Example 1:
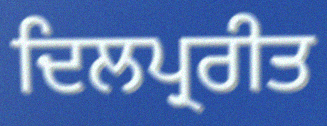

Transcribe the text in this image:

ਦਿਲਪ੍ਰਰੀਤ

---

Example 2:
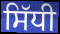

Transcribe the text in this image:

ਸਿੱਧੀ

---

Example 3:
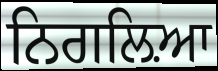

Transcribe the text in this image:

ਨਿਗਲ਼ਿਆ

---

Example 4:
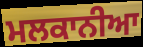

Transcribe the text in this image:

ਮਲਕਾਨੀਆ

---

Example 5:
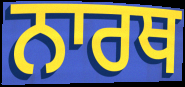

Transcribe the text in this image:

ਨਾਰਥ